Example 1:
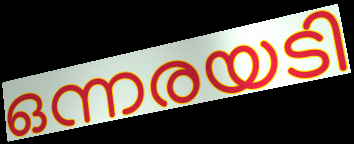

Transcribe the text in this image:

ഒന്നരയടി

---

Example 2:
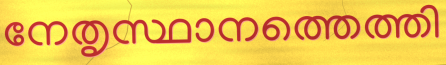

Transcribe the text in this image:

നേതൃസ്ഥാനത്തെത്തി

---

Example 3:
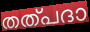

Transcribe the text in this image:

തത്പദാ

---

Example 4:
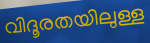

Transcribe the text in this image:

വിദൂരതയിലുള്ള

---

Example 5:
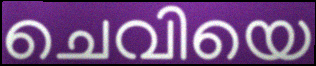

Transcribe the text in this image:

ചെവിയെ